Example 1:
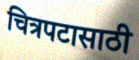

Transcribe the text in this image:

चित्रपटासाठी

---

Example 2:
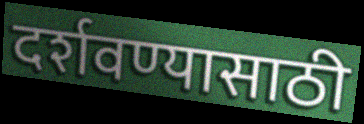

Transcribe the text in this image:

दर्शवण्यासाठी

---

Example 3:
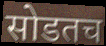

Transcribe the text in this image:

सोडतच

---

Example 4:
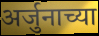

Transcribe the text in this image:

अर्जुनाच्या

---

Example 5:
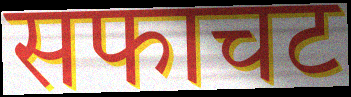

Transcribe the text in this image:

सफाचट